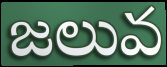
జలువ